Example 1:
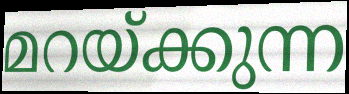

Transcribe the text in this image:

മറയ്ക്കുന്ന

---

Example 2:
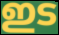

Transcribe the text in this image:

ഇട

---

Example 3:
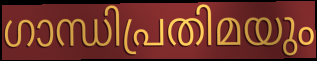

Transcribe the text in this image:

ഗാന്ധിപ്രതിമയും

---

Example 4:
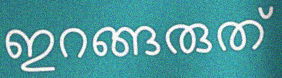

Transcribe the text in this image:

ഇറങ്ങരുത്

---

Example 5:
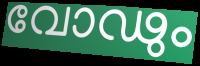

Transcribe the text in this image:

വോഢും